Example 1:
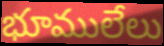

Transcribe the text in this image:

భూములేలు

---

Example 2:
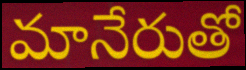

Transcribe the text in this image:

మానేరుతో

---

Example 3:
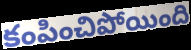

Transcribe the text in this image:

కంపించిపోయింది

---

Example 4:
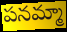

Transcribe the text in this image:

పనమ్మా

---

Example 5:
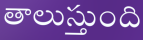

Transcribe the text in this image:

తాలుస్తుంది